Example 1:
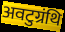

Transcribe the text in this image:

अवटुग्रंथि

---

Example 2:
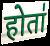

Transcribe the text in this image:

होता॑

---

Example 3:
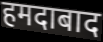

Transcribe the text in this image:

हमदाबाद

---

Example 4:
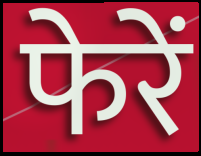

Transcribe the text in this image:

फेरें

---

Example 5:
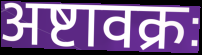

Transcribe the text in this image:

अष्टावक्रः